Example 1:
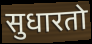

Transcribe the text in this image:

सुधारतो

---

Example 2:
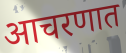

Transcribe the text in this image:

आचरणात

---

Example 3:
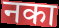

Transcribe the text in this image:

नका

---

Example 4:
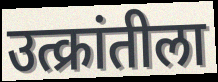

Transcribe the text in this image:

उत्क्रांतीला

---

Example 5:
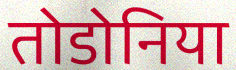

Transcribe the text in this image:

तोडोनिया